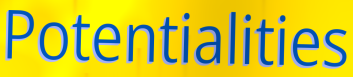
Potentialities